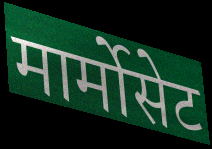
मार्मोसेट